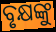
ବୃକ୍ଷଙ୍କୁ